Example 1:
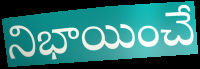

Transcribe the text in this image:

నిభాయించే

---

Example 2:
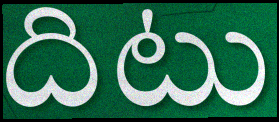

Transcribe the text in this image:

దిటు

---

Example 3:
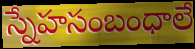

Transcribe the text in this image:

స్నేహసంబంధాలే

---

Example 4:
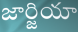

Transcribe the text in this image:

జార్జియా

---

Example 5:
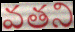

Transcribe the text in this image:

వతని